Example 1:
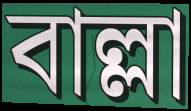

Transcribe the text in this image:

বাল্লা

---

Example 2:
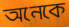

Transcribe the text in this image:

অনেকে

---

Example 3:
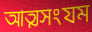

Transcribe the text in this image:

আত্মসংযম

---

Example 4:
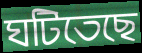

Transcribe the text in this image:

ঘটিতেছে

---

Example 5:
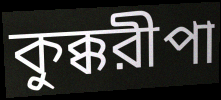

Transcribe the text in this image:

কুক্করীপা